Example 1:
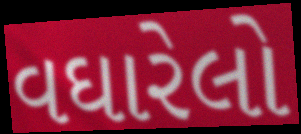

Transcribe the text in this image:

વઘારેલો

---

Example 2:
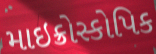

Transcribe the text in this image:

માઇક્રોસ્કોપિક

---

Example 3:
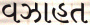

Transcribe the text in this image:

વઝાહત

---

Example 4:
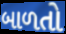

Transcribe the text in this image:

બાળતો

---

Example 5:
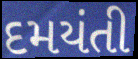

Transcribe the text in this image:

દમયંતી